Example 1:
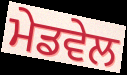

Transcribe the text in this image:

ਮੇਡਵੇਲ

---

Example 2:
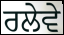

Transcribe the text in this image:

ਰਲੇਵੇ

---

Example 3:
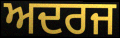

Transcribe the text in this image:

ਅਦਰਜ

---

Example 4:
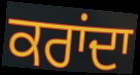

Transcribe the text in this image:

ਕਰਾਂਦਾ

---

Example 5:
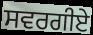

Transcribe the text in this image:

ਸਵਰਗੀਏ